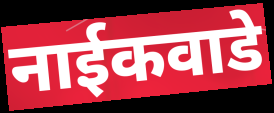
नाईकवाडे